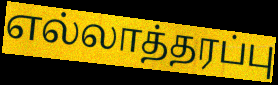
எல்லாத்தரப்பு